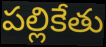
పల్లికేతు